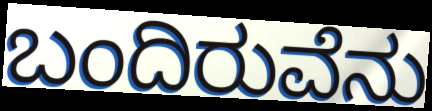
ಬಂದಿರುವೆನು